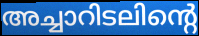
അച്ചാറിടലിന്റെ